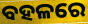
ବହଳରେ